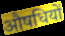
औषधियों